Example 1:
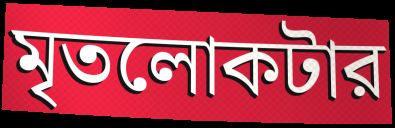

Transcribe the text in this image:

মৃতলোকটার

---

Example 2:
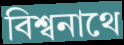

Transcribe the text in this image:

বিশ্বনাথে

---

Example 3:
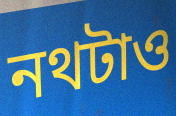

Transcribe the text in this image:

নথটাও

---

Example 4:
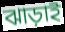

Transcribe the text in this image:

ঝাড়াই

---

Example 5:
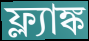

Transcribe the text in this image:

ফ্ল্যাঙ্ক